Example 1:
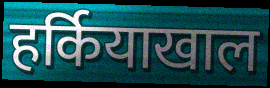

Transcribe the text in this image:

हर्कियाखाल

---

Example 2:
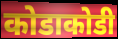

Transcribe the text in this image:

कोडाकोडी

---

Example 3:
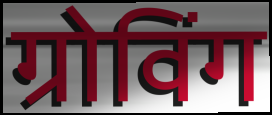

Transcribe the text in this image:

ग्रोविंग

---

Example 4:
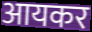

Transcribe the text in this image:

आयकर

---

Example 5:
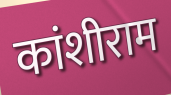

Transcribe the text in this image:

कांशीराम